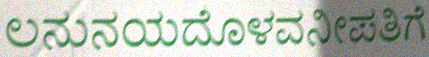
ಲನುನಯದೊಳವನೀಪತಿಗೆ